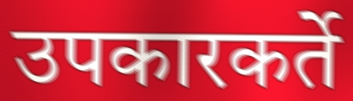
उपकारकर्ते